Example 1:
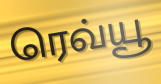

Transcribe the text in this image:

ரெவ்யூ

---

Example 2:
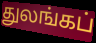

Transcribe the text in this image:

துலங்கப்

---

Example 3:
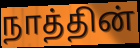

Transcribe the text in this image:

நாத்தின்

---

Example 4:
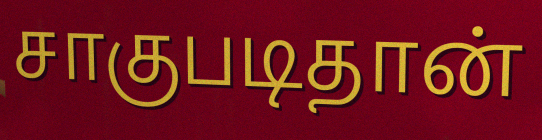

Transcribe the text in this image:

சாகுபடிதான்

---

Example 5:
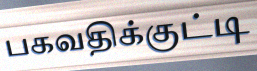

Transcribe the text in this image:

பகவதிக்குட்டி